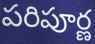
పరిపూర్ణ